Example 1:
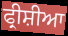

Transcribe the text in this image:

ਫ੍ਰੀਸ਼ੀਆ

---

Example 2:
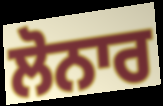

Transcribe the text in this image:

ਲੋਨਾਰ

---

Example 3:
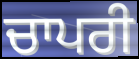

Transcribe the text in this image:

ਚਾਪਰੀ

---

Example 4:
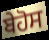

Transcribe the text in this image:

ਬੇਹੋਸ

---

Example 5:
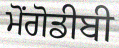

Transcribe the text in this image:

ਮੋਂਗੋਡੀਬੀ